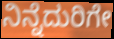
ನಿನ್ನೆದುರಿಗೇ